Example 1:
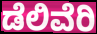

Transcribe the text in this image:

ಡೆಲಿವೆರಿ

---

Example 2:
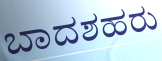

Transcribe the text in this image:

ಬಾದಶಹರು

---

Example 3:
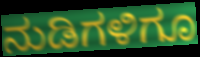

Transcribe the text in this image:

ನುಡಿಗಳಿಗೂ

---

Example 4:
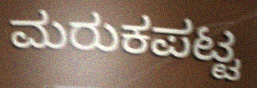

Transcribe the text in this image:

ಮರುಕಪಟ್ಟ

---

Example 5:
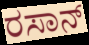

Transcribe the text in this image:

ರಸಾನ್